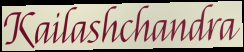
Kailashchandra